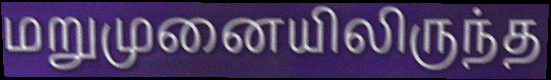
மறுமுனையிலிருந்த